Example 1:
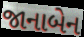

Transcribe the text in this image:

જાનાબેન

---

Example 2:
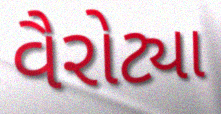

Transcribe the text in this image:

વૈરોટ્યા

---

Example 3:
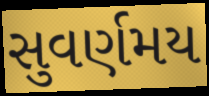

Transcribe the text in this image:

સુવર્ણમય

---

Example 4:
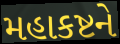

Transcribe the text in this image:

મહાકષ્ટને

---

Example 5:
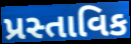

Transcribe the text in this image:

પ્રસ્તાવિક